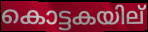
കൊട്ടകയില്